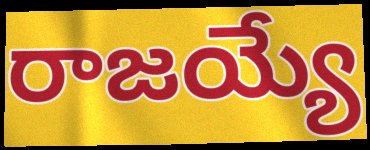
రాజయ్యే